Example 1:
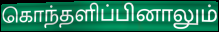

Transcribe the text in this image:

கொந்தளிப்பினாலும்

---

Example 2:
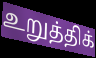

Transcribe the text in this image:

உறுத்திக்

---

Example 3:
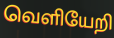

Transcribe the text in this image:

வெளியேறி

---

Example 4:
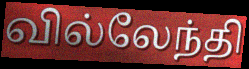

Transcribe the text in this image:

வில்லேந்தி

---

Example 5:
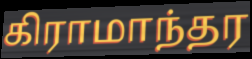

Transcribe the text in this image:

கிராமாந்தர